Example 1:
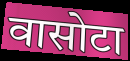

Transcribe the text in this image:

वासोटा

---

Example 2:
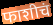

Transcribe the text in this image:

फाशीचं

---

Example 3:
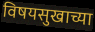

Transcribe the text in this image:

विषयसुखाच्या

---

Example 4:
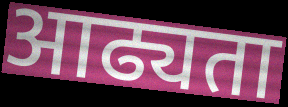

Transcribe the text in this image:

आढ्यता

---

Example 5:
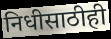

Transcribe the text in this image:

निधीसाठीही